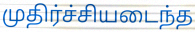
முதிர்ச்சியடைந்த